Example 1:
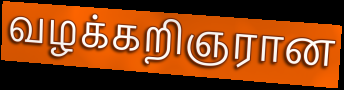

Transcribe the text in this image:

வழக்கறிஞரான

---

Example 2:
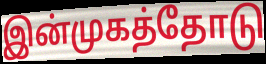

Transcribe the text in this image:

இன்முகத்தோடு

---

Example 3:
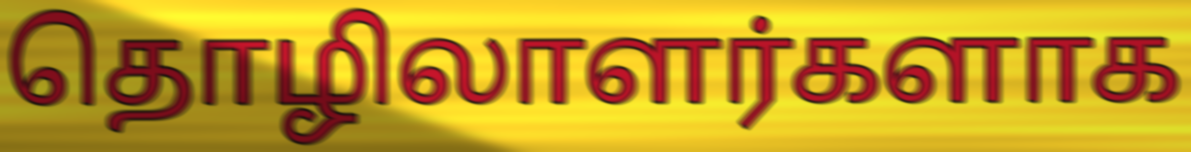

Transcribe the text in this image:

தொழிலாளர்களாக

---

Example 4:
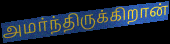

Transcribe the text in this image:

அமர்ந்திருக்கிறான்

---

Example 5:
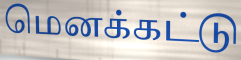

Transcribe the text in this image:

மெனக்கட்டு